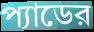
প্যাডের